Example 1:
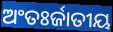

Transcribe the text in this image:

ଅଂତଃର୍ଜାତୀୟ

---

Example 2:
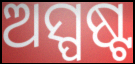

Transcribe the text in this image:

ଅସ୍ପଷ୍ଟ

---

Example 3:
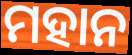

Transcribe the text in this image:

ମହାନ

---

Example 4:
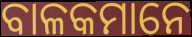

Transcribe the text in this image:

ବାଳକମାନେ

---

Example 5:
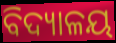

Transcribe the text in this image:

ବିଦ୍ଯାଳୟ